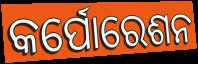
କର୍ପୋରେଶନ